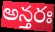
అన్తరః